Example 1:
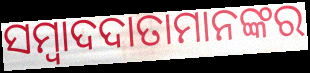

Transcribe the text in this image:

ସମ୍ବାଦଦାତାମାନଙ୍କର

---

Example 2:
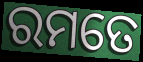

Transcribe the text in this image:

ରମତେ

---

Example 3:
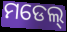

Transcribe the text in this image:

ମଡେଲ୍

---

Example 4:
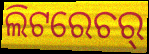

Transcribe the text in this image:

ଲିଟରେଚର୍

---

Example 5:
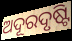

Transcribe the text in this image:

ଅଦୂରଦୃଷ୍ଟି